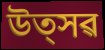
উত্সৱ